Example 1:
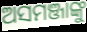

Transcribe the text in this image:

ଅସମଞ୍ଜାଙ୍କୁ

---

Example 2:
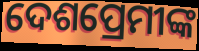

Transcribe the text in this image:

ଦେଶପ୍ରେମୀଙ୍କ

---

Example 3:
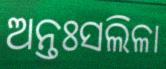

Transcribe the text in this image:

ଅନ୍ତଃସଲିଳା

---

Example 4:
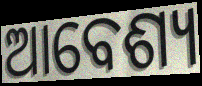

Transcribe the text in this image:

ଆବେଶ୍ୟ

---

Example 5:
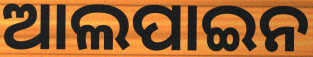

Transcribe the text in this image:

ଆଲପାଇନ